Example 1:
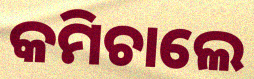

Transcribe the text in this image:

କମିଚାଲେ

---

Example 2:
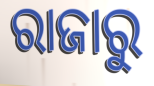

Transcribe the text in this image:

ରାଜାରୁ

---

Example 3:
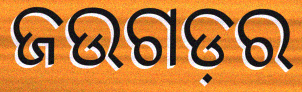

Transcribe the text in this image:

ଜଉଗଡ଼ର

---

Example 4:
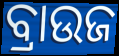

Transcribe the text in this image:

ବ୍ରାଉଜ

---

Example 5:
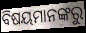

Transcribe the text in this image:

ବିଷୟମାନଙ୍କରୁ